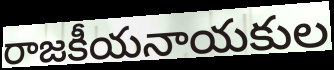
రాజకీయనాయకుల